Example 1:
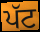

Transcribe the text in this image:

ਪੱਟ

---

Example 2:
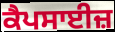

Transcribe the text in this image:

ਕੈਪਸਾਈਜ਼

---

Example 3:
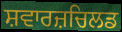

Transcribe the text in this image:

ਸ਼ਵਾਰਜ਼ਚਿਲਡ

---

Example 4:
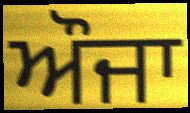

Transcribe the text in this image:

ਔਜਾ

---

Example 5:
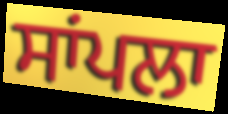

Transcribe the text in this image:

ਸਾਂਪਲਾ